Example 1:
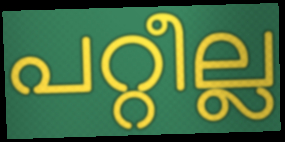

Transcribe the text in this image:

പറ്റീല്ല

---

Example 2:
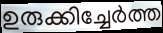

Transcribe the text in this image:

ഉരുക്കിച്ചേർത്ത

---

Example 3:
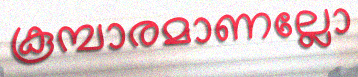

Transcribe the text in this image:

കൂമ്പാരമാണല്ലോ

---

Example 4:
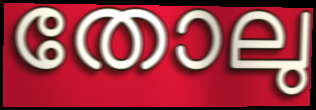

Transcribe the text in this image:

തോലു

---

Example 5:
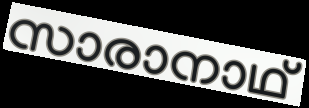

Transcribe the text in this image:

സാരാനാഥ്